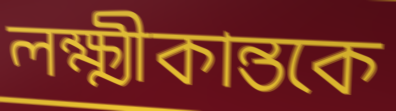
লক্ষ্মীকান্তকে